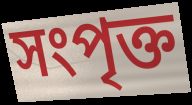
সংপৃক্ত